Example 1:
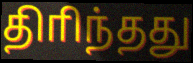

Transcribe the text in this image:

திரிந்தது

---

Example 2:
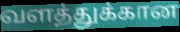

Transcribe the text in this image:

வளத்துக்கான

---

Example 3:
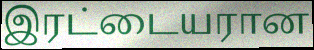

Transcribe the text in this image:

இரட்டையரான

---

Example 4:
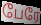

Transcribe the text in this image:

பேரே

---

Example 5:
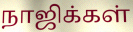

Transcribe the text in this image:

நாஜிக்கள்